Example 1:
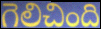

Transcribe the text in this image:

గెలిచింది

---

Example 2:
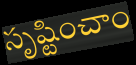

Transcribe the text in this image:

సృష్టించాం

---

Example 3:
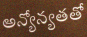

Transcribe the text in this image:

అన్యోన్యతతో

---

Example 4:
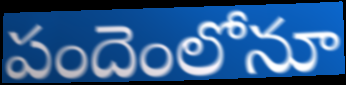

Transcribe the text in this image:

పందెంలోనూ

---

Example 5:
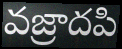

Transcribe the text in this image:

వజ్రాదపి